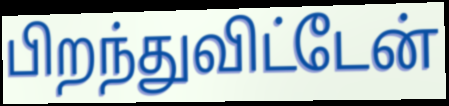
பிறந்துவிட்டேன்